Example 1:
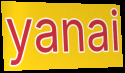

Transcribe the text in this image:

yanai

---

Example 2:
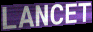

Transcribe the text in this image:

LANCET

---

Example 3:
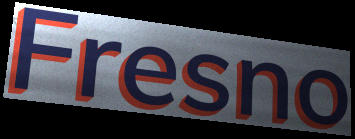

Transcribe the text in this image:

Fresno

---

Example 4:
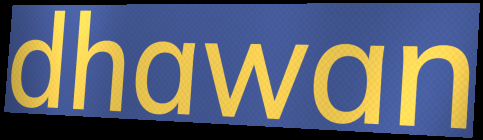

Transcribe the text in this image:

dhawan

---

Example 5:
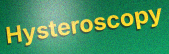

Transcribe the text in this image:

Hysteroscopy